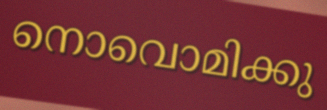
നൊവൊമിക്കു